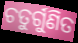
ଚତୁର୍ଗୁଣିତ